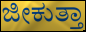
ಜೀಕುತ್ತಾ